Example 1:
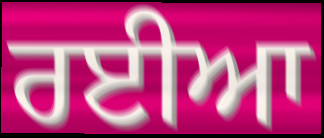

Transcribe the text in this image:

ਰਈਆ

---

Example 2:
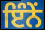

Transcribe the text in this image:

ਇੰਨੇਂ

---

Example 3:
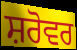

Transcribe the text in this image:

ਸ਼ਰੋਵਰ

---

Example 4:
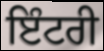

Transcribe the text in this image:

ਇੰਟਰੀ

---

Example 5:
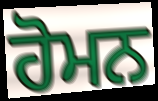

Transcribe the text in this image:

ਹੋਮਨ